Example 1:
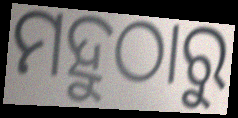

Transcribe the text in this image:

ମହୁଠାରୁ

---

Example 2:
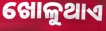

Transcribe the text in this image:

ଖୋଳୁଥାଏ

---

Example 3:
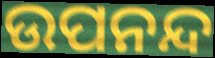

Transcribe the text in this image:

ଉପନନ୍ଦ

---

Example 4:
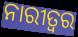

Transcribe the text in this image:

ନାରୀତ୍ୱର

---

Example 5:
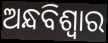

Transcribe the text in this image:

ଅନ୍ଧବିଶ୍ୱାର